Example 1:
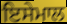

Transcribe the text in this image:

ਇਸੇਮਾਲ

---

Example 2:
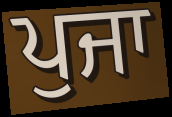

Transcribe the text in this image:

ਪੁਜਾ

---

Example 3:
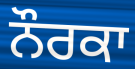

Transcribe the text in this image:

ਨੌਰਕਾ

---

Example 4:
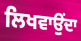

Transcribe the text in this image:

ਲਿਖਵਾਉਂਦਾ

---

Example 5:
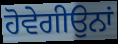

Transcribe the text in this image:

ਹੋਵੇਗੀਉਨਾਂ